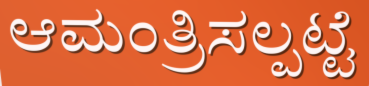
ಆಮಂತ್ರಿಸಲ್ಪಟ್ಟೆ